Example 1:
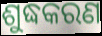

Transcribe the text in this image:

ଶୁଦ୍ଧକରଣ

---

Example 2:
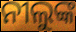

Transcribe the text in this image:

ନୀଲୁଙ୍କ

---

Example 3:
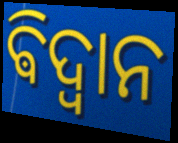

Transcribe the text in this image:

ଵିଦ୍ଵାନ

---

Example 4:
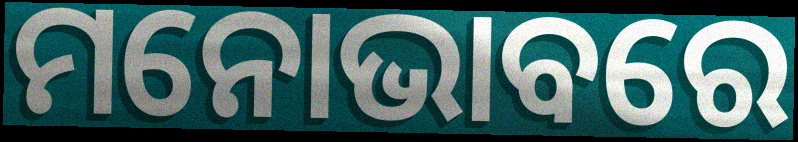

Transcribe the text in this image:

ମନୋଭାବରେ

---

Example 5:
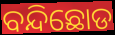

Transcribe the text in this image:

ବନ୍ଦିଛୋଡ